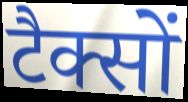
टैक्सों